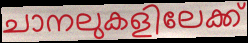
ചാനലുകളിലേക്ക്